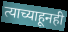
त्याच्याहूनही